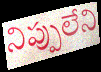
నిప్పులేని